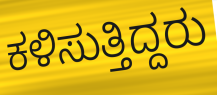
ಕಳಿಸುತ್ತಿದ್ದರು